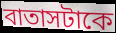
বাতাসটাকে